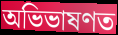
অভিভাষণত